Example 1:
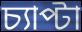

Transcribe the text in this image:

চ্যাপ্টা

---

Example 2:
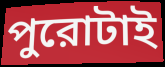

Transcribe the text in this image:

পুরোটাই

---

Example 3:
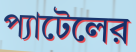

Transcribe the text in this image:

প্যাটেলের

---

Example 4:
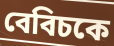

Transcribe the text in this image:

বেবিচকে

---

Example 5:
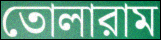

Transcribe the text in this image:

তোলারাম